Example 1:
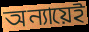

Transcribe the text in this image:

অন্যায়েই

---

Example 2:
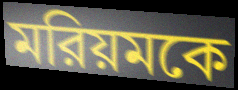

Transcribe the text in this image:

মরিয়মকে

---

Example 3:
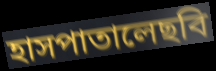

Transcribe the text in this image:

হাসপাতালেছবি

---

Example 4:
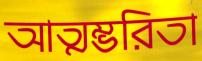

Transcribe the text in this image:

আত্মম্ভরিতা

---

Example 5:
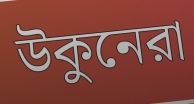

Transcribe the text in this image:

উকুনেরা